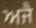
ਅਜੈ